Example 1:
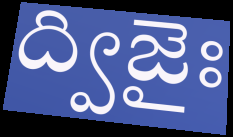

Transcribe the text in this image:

ద్విజైః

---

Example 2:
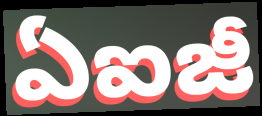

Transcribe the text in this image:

ఏఐజీ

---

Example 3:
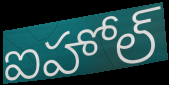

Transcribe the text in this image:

ఐహోల్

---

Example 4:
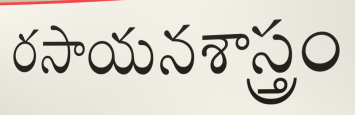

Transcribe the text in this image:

రసాయనశాస్త్రం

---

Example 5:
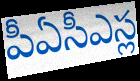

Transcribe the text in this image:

పీఏసీఎస్ల